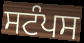
ਸਟੰਪਸ